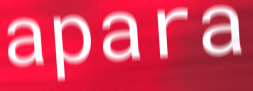
apara